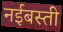
नईबस्ती